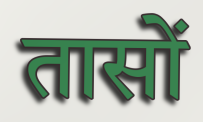
तासों